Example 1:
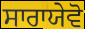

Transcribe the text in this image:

ਸਾਰਾਯੇਵੋ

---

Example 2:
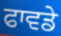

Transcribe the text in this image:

ਫਾਵਡੇ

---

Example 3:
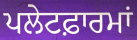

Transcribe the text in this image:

ਪਲੇਟਫ਼ਾਰਮਾਂ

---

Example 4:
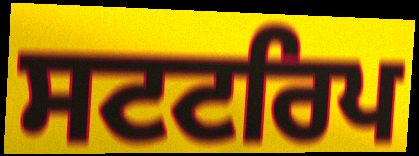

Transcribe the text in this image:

ਸਟਟਰਿਪ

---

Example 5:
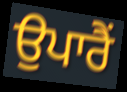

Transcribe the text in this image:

ਉਪਾਰੈਂ